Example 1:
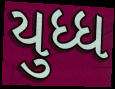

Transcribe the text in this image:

યુધ્ધ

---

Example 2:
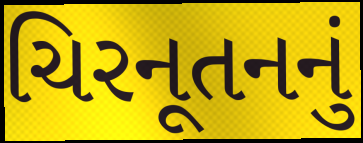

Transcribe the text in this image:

ચિરનૂતનનું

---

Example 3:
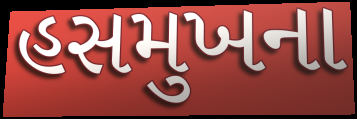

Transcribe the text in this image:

હસમુખના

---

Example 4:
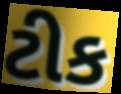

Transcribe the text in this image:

ટીક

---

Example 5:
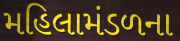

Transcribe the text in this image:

મહિલામંડળના